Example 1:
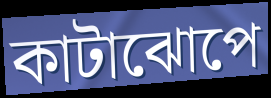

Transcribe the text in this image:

কাটাঝোপে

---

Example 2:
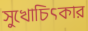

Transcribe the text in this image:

সুখোচিৎকার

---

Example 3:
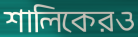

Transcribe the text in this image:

শালিকেরও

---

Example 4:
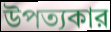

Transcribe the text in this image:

উপত্যকার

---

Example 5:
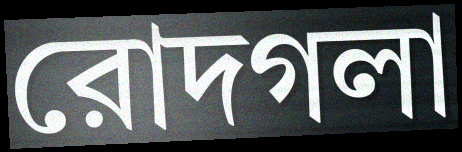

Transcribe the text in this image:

রোদগলা